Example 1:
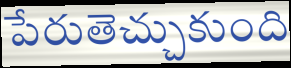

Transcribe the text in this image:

పేరుతెచ్చుకుంది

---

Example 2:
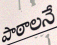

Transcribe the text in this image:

పాఠాలనే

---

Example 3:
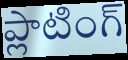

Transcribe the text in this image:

ప్లాటింగ్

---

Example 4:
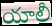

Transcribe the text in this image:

యాలీ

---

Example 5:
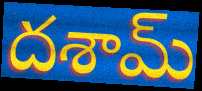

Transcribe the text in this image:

దశామ్